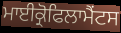
ਮਾਈਕ੍ਰੋਫਿਲਾਮੈਂਟਸ